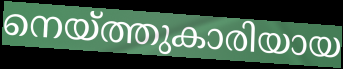
നെയ്ത്തുകാരിയായ